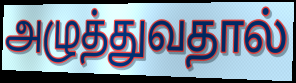
அழுத்துவதால்